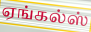
ஏங்கல்ஸ்